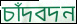
চাঁদবদন